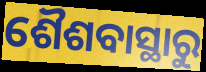
ଶୈଶବାସ୍ଥାରୁ